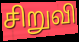
சிறுவி